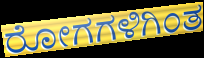
ರೋಗಗಳಿಗಿಂತ